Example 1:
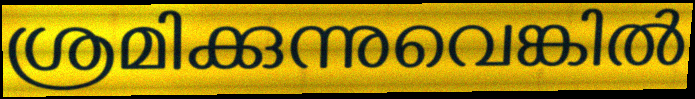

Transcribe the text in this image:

ശ്രമിക്കുന്നുവെങ്കിൽ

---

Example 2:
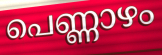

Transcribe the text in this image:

പെണ്ണാഴം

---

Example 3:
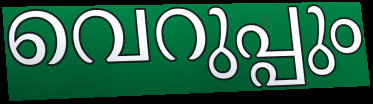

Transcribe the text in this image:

വെറുപ്പും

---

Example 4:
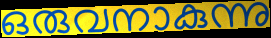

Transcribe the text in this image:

ഒരുവനാകുന്നു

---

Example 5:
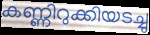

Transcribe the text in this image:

കണ്ണിറുക്കിയടച്ചു